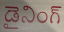
డైనింగ్